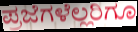
ಪ್ರಜೆಗಳೆಲ್ಲರಿಗೂ